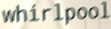
whirlpool